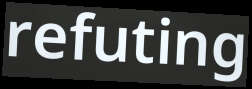
refuting